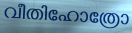
വീതിഹോത്രോ